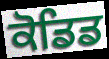
ਕੋਡਿਡ